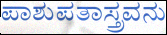
ಪಾಶುಪತಾಸ್ತ್ರವನು